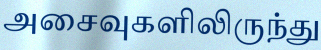
அசைவுகளிலிருந்து